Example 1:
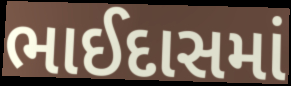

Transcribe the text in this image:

ભાઈદાસમાં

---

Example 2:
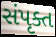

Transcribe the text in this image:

સંપૃક્ત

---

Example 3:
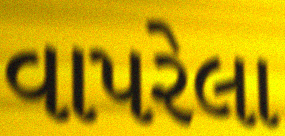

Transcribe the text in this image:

વાપરેલા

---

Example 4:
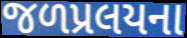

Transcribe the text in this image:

જળપ્રલયના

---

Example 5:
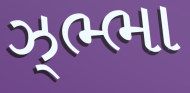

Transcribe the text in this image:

ઝ્ભ્ભા